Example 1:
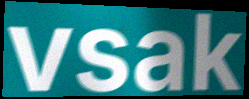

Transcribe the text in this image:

vsak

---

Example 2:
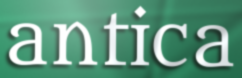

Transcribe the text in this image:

antica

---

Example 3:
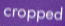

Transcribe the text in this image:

cropped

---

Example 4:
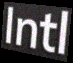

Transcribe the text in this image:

Intl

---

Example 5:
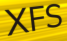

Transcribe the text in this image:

XFS